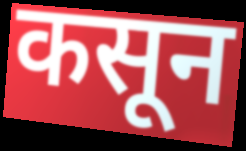
कसून